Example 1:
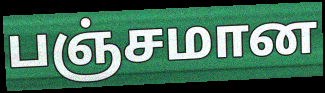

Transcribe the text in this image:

பஞ்சமான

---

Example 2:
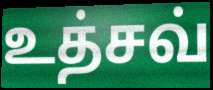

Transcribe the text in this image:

உத்சவ்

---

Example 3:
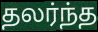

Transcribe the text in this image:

தலர்ந்த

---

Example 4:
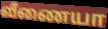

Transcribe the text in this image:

வீணையா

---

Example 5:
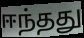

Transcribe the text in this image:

ஈந்தது